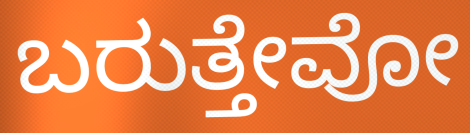
ಬರುತ್ತೇವೋ